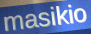
masikio